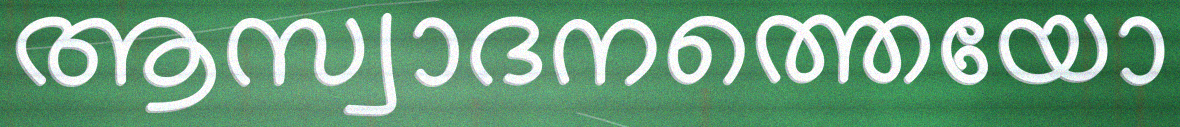
ആസ്വാദനത്തെയോ